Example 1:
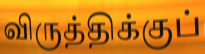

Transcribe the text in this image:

விருத்திக்குப்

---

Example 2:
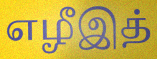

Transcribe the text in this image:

எழீஇத்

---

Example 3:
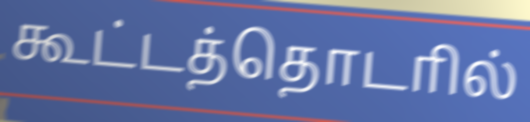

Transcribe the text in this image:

கூட்டத்தொடரில்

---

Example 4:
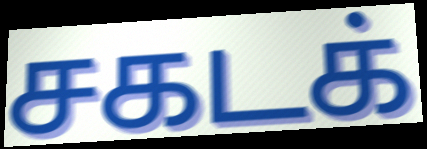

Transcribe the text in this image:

சகடக்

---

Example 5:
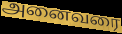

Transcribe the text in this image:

அனைவரை